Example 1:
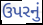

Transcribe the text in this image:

ઉપરનું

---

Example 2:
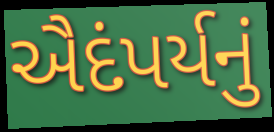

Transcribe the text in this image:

ઐદંપર્યનું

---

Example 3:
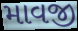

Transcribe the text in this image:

માવજી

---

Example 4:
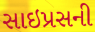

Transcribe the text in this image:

સાઇપ્રસની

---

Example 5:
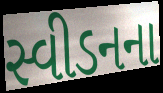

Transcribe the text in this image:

સ્વીડનના